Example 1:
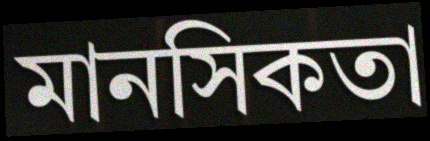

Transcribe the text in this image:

মানসিকতা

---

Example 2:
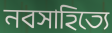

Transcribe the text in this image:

নবসাহিত্যে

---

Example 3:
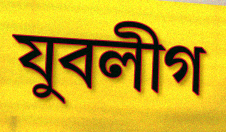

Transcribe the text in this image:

যুবলীগ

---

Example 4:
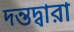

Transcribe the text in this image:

দন্তদ্বারা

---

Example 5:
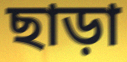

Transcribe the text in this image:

ছাড়া